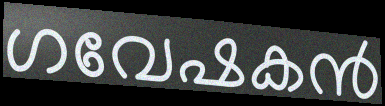
ഗവേഷകൻ